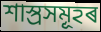
শাস্ত্ৰসমূহৰ